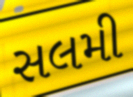
સલમી